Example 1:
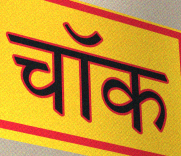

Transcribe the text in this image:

चॉक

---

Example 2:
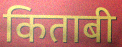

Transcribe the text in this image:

किताबी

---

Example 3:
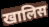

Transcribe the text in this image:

खालिस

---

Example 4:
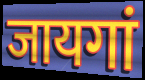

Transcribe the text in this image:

जायगां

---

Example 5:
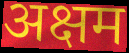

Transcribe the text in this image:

अक्षम